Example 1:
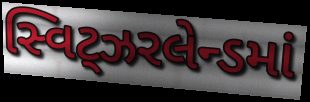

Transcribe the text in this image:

સ્વિટ્ઝરલેન્ડમાં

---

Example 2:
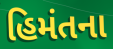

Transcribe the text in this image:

હિમંતના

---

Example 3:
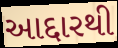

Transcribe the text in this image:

આદ્દારથી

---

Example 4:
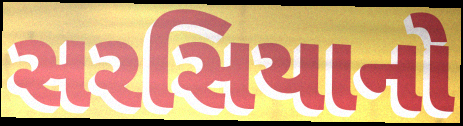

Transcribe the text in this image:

સરસિયાનો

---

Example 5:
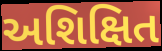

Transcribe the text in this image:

અશિક્ષિત